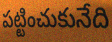
పట్టించుకునేది